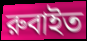
রুবাইত